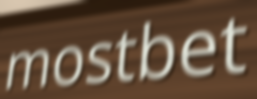
mostbet